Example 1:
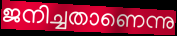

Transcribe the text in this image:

ജനിച്ചതാണെന്നു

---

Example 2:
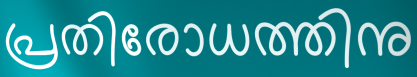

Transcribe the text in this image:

പ്രതിരോധത്തിനു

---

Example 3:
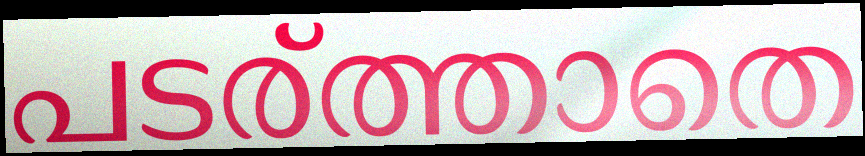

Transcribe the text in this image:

പടര്ത്താതെ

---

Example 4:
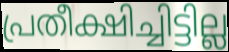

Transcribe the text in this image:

പ്രതീക്ഷിച്ചിട്ടില്ല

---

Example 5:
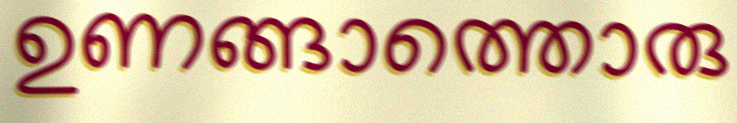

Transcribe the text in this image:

ഉണങ്ങാത്തൊരു